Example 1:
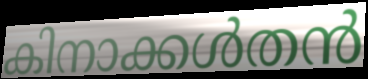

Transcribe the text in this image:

കിനാക്കൾതൻ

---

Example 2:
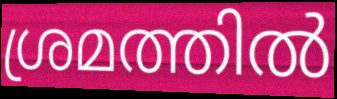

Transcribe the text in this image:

ശ്രമത്തിൽ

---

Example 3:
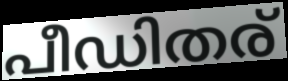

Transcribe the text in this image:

പീഡിതര്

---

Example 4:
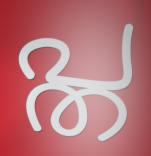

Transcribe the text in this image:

പ്ത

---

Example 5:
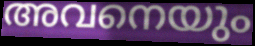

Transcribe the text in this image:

അവനെയും